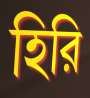
হিরি